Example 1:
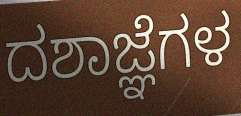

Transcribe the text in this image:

ದಶಾಜ್ಞೆಗಳ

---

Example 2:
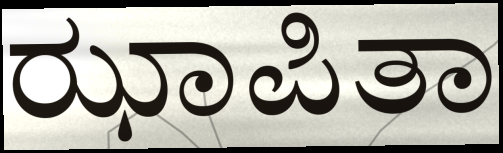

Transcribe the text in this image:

ಝಾಪಿತಾ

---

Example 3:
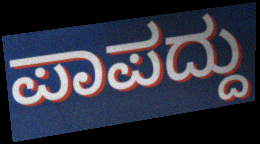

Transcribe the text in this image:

ಪಾಪದ್ದು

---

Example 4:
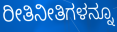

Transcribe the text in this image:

ರೀತಿನೀತಿಗಳನ್ನೂ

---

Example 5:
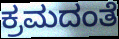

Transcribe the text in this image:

ಕ್ರಮದಂತೆ